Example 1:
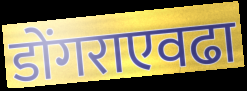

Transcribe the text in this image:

डोंगराएवढा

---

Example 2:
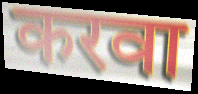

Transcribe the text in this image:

करवा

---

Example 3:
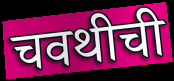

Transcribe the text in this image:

चवथीची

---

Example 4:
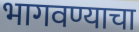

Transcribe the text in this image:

भागवण्याचा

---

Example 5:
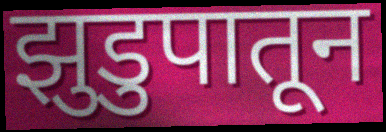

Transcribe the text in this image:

झुडुपातून